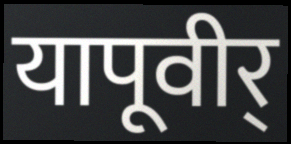
यापूवीर्